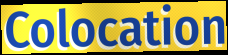
Colocation